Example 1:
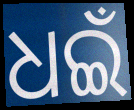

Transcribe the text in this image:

ଧଇଁ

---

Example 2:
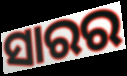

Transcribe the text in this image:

ସାରର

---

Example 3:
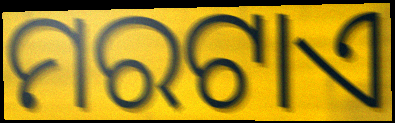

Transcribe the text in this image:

ମରଟାଏ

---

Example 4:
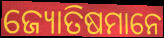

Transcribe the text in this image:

ଜ୍ୟୋତିଷମାନେ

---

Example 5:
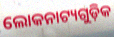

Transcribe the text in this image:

ଲୋକନାଟ୍ୟଗୁଡ଼ିକ